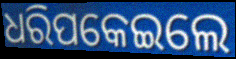
ଧରିପକେଇଲେ